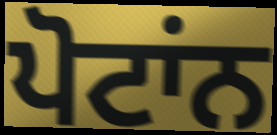
ਪੋਟਾਂਨ